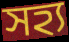
সহ্য